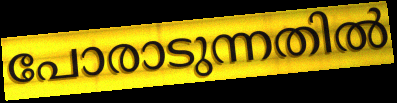
പോരാടുന്നതിൽ